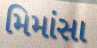
મિમાંસા